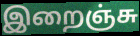
இறைஞ்சு